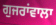
ਗੁਜਰਾਂਵਾਲਾ